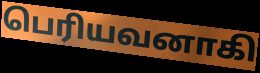
பெரியவனாகி